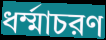
ধর্ম্মাচরণ